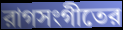
রাগসংগীতের